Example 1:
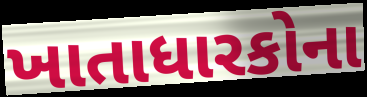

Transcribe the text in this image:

ખાતાધારકોના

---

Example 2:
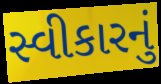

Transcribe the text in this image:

સ્વીકારનું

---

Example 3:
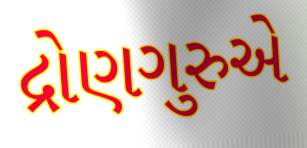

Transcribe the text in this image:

દ્રોણગુરુએ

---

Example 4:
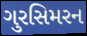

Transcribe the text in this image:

ગુરસિમરન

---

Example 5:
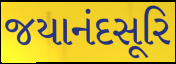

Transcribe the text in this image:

જયાનંદસૂરિ